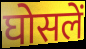
घोसलें